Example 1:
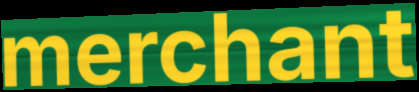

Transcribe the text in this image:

merchant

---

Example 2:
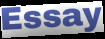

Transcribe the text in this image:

Essay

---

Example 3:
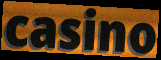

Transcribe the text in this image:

casino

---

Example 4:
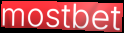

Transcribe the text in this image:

mostbet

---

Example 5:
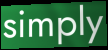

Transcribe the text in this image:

simply